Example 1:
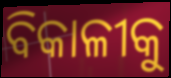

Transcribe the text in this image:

ବିକାଳୀକୁ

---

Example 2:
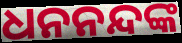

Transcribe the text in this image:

ଧନନନ୍ଦଙ୍କ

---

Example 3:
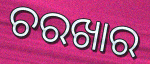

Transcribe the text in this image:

ଚରଖାର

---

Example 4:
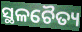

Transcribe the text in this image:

ସ୍ଥଳଚୈତ୍ୟ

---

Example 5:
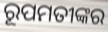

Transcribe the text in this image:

ରୂପମତୀଙ୍କର